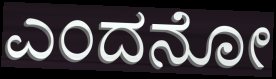
ಎಂದನೋ